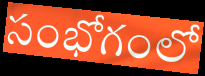
సంభోగంలో